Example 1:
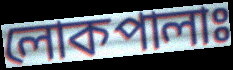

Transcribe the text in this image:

লোকপালাঃ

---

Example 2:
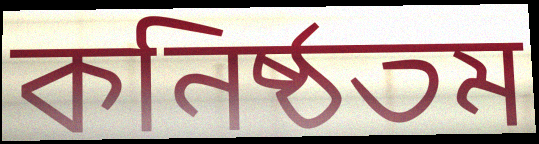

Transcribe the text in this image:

কনিষ্ঠতম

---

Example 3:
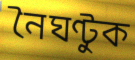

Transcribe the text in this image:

নৈঘণ্টুক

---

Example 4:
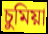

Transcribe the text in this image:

চুমিয়া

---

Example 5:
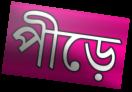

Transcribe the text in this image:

পীড়ে